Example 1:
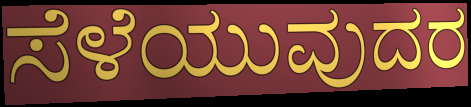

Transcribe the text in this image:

ಸೆಳೆಯುವುದರ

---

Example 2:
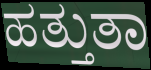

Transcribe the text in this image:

ಹತ್ತುತಾ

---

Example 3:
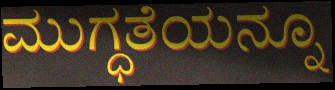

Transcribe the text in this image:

ಮುಗ್ಧತೆಯನ್ನೂ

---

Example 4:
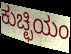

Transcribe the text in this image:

ಕುಚ್ಛಿಯಂ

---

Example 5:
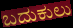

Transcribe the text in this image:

ಬದುಕುಲು